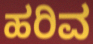
ಹರಿವ